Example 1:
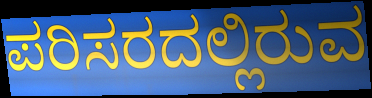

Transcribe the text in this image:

ಪರಿಸರದಲ್ಲಿರುವ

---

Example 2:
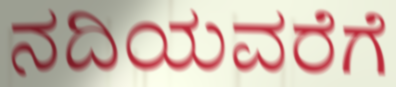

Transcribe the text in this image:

ನದಿಯವರೆಗೆ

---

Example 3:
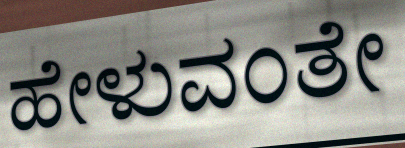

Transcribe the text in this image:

ಹೇಳುವಂತೇ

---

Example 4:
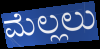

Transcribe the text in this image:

ಮೆಲ್ಲಲು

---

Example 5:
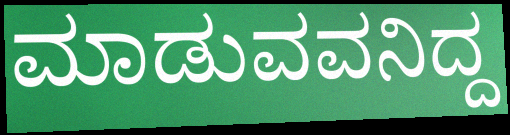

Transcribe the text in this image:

ಮಾಡುವವನಿದ್ದ